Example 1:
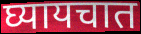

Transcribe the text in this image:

घ्यायचात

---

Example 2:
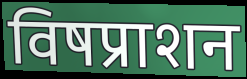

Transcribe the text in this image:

विषप्राशन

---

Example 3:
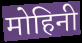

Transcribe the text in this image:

मोहिनी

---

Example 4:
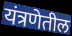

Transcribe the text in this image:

यंत्रणेतील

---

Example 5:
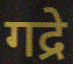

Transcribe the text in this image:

गद्रे